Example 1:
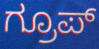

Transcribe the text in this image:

ಗ್ರೂಪ್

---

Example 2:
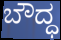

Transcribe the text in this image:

ಬೌದ್ಧ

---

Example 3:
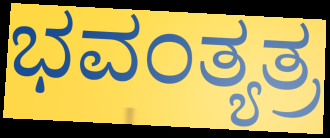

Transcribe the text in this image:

ಭವಂತ್ಯತ್ರ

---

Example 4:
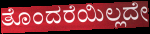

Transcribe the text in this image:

ತೊಂದರೆಯಿಲ್ಲದೇ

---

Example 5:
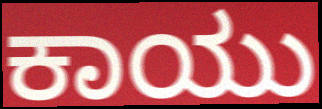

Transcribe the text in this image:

ಕಾಯು